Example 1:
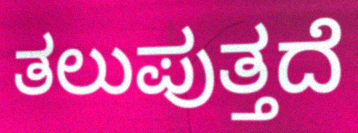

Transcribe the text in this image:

ತಲುಪುತ್ತದೆ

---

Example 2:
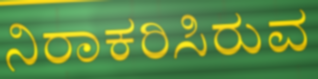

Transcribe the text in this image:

ನಿರಾಕರಿಸಿರುವ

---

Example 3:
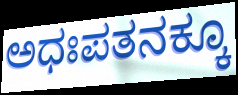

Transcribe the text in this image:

ಅಧಃಪತನಕ್ಕೂ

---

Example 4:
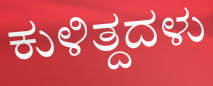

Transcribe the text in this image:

ಕುಳಿತ್ದದಳು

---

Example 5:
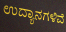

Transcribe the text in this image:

ಉದ್ಯಾನಗಳಿವೆ